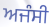
ਅਜੰਸੀ